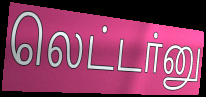
லெட்டர்னு